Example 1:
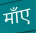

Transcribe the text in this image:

माँए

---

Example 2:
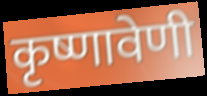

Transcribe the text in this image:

कृष्णावेणी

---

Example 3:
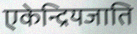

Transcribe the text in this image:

एकेन्द्रियजाति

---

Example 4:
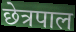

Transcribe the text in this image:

छेत्रपाल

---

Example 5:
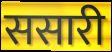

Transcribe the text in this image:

ससारी